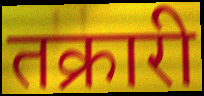
तक्रारी